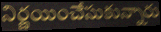
నిర్ణయించేసుకున్నారు